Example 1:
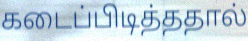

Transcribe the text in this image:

கடைப்பிடித்ததால்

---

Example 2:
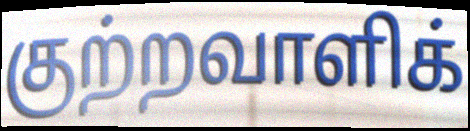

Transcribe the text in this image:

குற்றவாளிக்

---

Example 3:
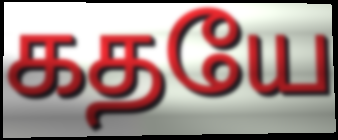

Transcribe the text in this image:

கதயே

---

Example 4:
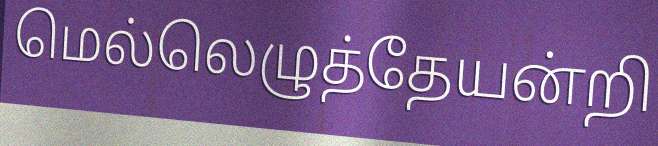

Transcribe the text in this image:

மெல்லெழுத்தேயன்றி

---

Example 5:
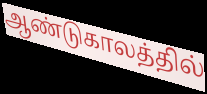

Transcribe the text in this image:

ஆண்டுகாலத்தில்